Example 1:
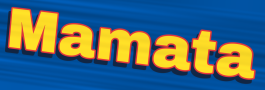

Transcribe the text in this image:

Mamata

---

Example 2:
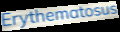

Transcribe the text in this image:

Erythematosus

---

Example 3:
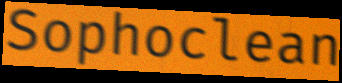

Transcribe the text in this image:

Sophoclean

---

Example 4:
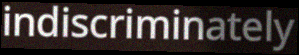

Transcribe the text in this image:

indiscriminately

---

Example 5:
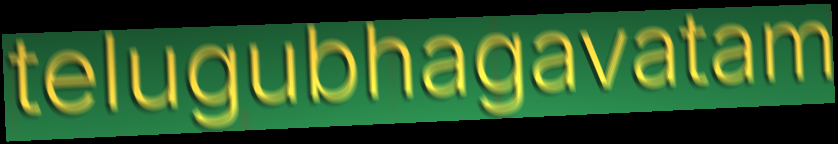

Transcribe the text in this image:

telugubhagavatam